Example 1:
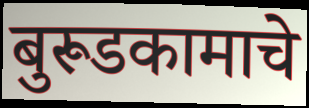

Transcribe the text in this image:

बुरूडकामाचे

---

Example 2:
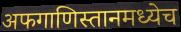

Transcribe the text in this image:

अफगाणिस्तानमध्येच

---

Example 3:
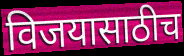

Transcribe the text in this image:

विजयासाठीच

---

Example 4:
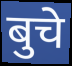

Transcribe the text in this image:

बुचे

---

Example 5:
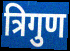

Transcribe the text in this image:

त्रिगुण